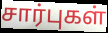
சார்புகள்